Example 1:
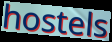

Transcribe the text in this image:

hostels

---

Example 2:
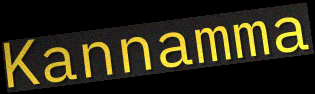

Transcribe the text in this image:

Kannamma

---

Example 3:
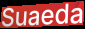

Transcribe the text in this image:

Suaeda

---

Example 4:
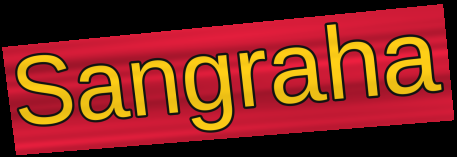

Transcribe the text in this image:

Sangraha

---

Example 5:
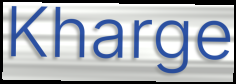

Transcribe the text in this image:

Kharge